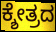
ಕ್ಶೇತ್ರದ